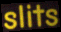
slits